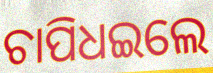
ଚାପିଧଇଲେ